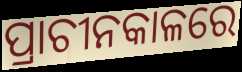
ପ୍ରାଚୀନକାଳରେ